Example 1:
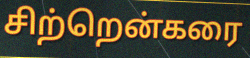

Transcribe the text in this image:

சிற்றென்கரை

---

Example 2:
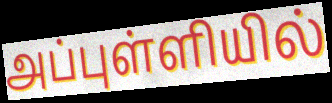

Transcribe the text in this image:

அப்புள்ளியில்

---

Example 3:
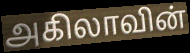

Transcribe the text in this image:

அகிலாவின்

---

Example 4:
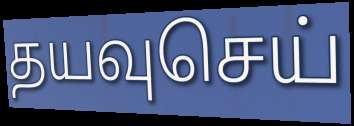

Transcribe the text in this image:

தயவுசெய்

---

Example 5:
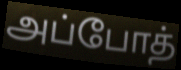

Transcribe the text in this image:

அப்போத்